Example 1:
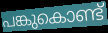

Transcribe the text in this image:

പങ്കുകൊണ്ട്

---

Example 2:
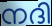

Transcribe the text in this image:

നദി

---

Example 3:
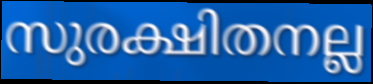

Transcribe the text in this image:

സുരക്ഷിതനല്ല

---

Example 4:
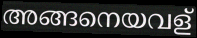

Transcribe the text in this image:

അങ്ങനെയവള്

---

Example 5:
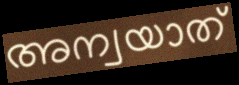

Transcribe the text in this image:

അന്വയാത്